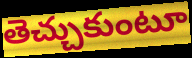
తెచ్చుకుంటూ